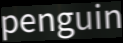
penguin